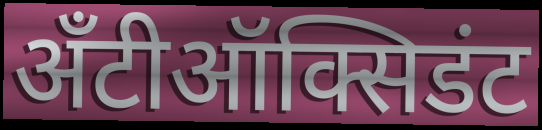
अँटीऑक्सिडंट